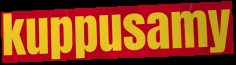
kuppusamy